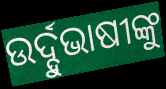
ଉର୍ଦ୍ଦୁଭାଷୀଙ୍କୁ